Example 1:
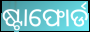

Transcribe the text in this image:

ଷ୍ଟାଫୋର୍ଡ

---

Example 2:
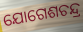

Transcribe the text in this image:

ଯୋଗେଶଚନ୍ଦ୍ର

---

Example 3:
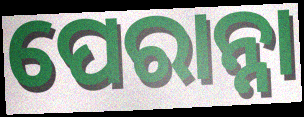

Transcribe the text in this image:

ପେରାନ୍ନା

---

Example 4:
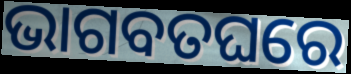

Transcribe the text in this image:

ଭାଗବତଘରେ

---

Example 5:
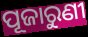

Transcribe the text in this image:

ପୂଜାରୁଣୀ